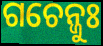
ଗଚେନ୍ଜୁଃ